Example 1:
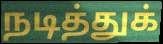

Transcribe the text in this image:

நடித்துக்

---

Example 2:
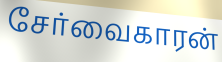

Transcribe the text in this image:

சேர்வைகாரன்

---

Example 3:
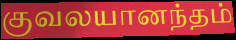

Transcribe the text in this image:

குவலயானந்தம்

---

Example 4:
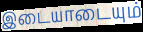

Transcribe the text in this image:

இடையாடையும்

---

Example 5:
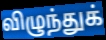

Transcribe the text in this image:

விழுந்துக்